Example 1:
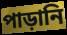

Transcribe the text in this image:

পাড়ানি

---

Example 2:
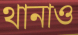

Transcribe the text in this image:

থানাও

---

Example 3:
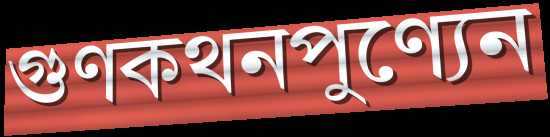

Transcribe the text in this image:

গুণকথনপুণ্যেন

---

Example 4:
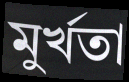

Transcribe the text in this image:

মুর্খতা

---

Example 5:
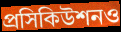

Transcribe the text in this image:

প্রসিকিউশনও